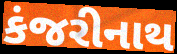
કંજરીનાથ